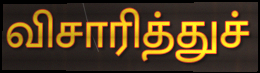
விசாரித்துச்